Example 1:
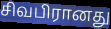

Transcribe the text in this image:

சிவபிரானது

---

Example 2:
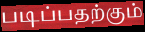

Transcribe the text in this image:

படிப்பதற்கும்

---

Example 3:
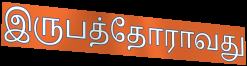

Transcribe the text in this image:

இருபத்தோராவது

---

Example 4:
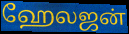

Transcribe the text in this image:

ஹேலஜன்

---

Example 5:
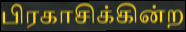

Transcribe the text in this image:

பிரகாசிக்கின்ற